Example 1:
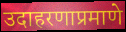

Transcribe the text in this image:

उदाहरणाप्रमाणे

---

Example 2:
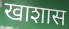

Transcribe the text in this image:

खाशास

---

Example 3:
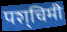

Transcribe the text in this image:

पश्चिमी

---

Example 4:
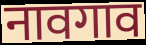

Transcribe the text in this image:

नावगाव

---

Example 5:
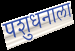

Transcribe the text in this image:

पशुधनाला